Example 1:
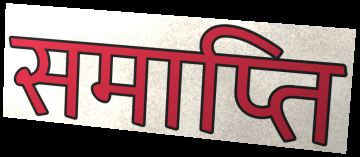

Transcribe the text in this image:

समाप्‍ति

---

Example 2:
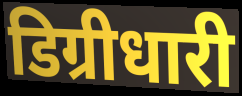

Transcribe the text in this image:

डिग्रीधारी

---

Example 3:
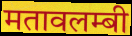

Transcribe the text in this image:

मतावलम्बी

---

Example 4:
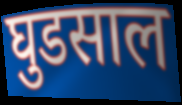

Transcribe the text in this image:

घुडसाल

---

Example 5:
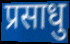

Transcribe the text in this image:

प्रसाधु